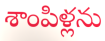
శాంపిళ్లను